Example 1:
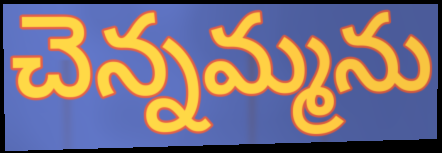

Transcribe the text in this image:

చెన్నమ్మను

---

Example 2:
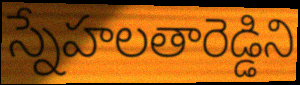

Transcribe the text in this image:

స్నేహలతారెడ్డిని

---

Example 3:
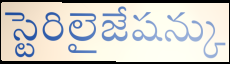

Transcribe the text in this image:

స్టెరిలైజేషన్కు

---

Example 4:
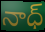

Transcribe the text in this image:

నాధ్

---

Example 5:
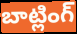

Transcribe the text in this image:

బాట్లింగ్